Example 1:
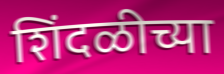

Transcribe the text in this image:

शिंदळीच्या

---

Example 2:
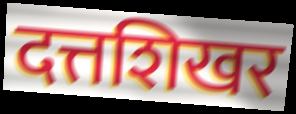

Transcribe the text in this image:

दत्तशिखर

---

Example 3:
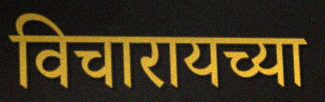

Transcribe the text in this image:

विचारायच्या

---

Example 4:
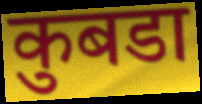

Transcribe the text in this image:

कुबडा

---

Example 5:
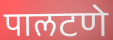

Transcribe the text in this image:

पालटणे